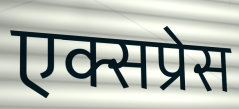
एक्सप्रेस